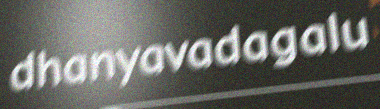
dhanyavadagalu